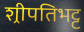
श्रीपतिभट्ट